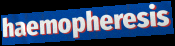
haemopheresis